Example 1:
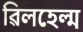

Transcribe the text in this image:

ৱিলহেল্ম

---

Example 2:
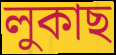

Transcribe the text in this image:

লুকাছ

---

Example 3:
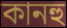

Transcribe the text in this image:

কানহু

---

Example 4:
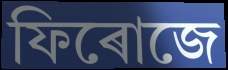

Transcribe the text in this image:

ফিৰোজে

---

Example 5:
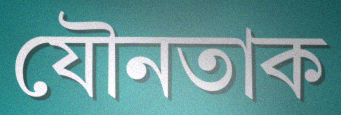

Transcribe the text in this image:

যৌনতাক